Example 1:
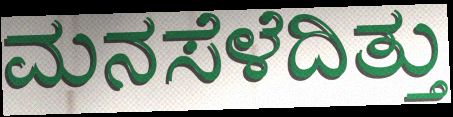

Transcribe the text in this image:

ಮನಸೆಳೆದಿತ್ತು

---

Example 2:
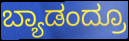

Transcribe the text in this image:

ಬ್ಯಾಡಂದ್ರೂ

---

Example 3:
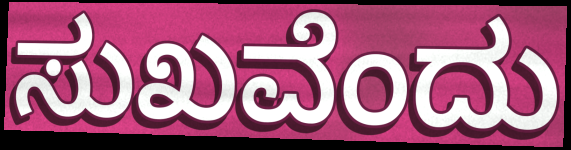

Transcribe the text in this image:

ಸುಖವೆಂದು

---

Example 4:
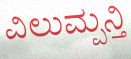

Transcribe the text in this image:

ವಿಲುಮ್ಪನ್ತಿ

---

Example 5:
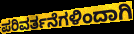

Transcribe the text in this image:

ಪರಿವರ್ತನೆಗಳಿಂದಾಗಿ